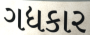
ગદ્યકાર